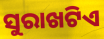
ସୁରାଖଟିଏ